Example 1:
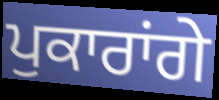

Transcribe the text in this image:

ਪੁਕਾਰਾਂਗੇ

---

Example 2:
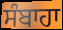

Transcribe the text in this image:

ਸੰਬਾਹਾ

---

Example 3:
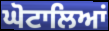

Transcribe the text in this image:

ਘੋਟਾਲਿਆਂ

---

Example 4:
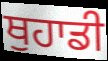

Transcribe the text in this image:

ਥੁਹਾਡੀ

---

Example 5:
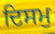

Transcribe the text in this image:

ਦਿਸਮੁ